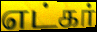
எட்கர்